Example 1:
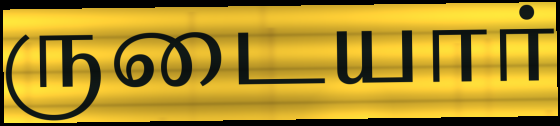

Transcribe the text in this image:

ருடையார்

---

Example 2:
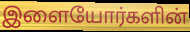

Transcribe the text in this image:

இளையோர்களின்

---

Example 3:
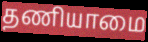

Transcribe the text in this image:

தணியாமை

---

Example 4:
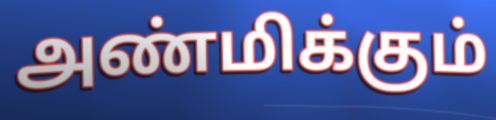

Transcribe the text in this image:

அண்மிக்கும்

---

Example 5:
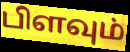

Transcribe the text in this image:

பிளவும்